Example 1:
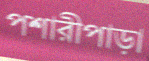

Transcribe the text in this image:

পশারীপাড়া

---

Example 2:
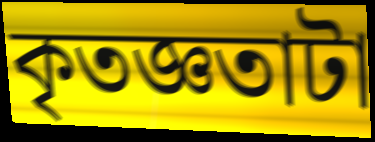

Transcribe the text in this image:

কৃতজ্ঞতাটা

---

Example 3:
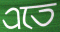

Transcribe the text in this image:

এতে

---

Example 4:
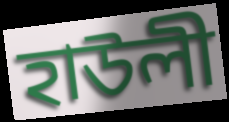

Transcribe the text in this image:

হাউলী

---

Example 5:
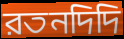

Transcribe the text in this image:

রতনদিদি